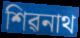
শিৱনাথ